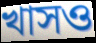
খাসও